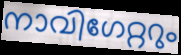
നാവിഗേറ്ററും